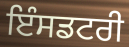
ਇੰਸਡਟਰੀ